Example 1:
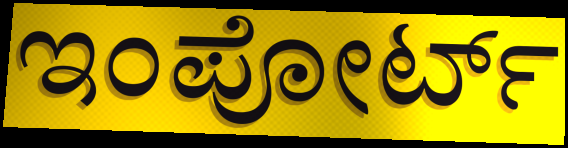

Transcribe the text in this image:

ಇಂಪೋರ್ಟ್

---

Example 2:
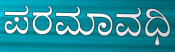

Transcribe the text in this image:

ಪರಮಾವಧಿ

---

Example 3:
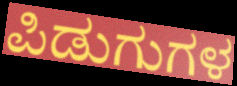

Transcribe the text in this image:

ಪಿಡುಗುಗಳ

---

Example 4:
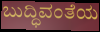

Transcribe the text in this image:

ಬುದ್ಧಿವಂತೆಯ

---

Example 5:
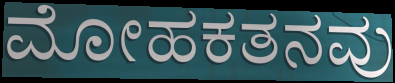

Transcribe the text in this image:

ಮೋಹಕತನವು